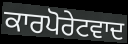
ਕਾਰਪੋਰੇਟਵਾਦ